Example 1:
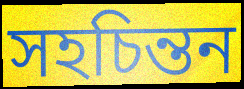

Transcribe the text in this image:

সহচিন্তন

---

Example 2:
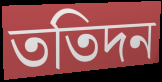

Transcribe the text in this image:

ততিদন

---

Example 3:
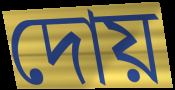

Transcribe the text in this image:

দোয়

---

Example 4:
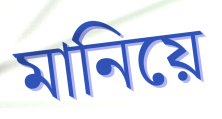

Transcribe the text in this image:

মানিয়ে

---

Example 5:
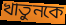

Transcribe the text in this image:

খাতুনকে